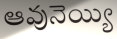
ఆవునెయ్యి